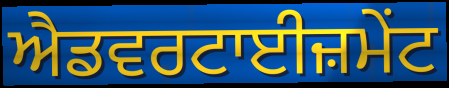
ਐਡਵਰਟਾਈਜ਼ਮੇਂਟ